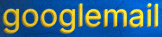
googlemail